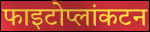
फाइटोप्लांकटन